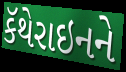
કૅથેરાઇનને